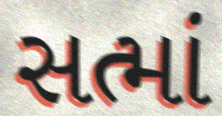
સત્માં